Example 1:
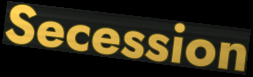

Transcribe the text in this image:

Secession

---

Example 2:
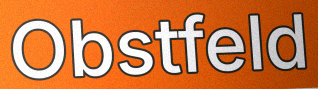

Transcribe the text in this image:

Obstfeld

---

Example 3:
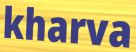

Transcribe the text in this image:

kharva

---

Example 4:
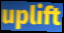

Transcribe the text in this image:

uplift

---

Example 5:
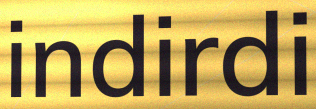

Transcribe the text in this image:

indirdi